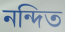
নন্দিত